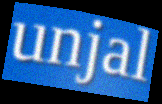
unjal